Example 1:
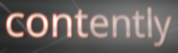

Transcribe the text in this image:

contently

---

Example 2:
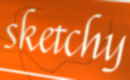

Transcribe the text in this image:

sketchy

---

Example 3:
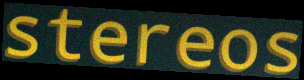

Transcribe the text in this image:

stereos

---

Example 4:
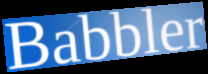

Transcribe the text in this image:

Babbler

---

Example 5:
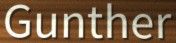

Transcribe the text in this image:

Gunther